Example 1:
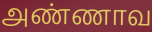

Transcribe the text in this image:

அண்ணாவ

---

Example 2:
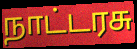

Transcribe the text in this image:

நாட்டரசு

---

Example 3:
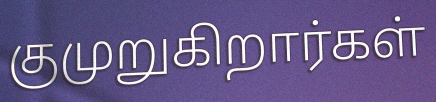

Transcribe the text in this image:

குமுறுகிறார்கள்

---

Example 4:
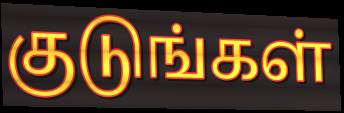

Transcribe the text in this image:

குடுங்கள்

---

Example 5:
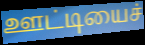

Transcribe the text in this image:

ஊட்டியைச்